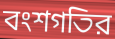
বংশগতির